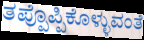
ತಪ್ಪೊಪ್ಪಿಕೊಳ್ಳುವಂತೆ